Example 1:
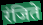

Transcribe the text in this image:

रंजिते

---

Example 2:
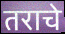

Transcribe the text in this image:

तराचे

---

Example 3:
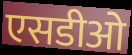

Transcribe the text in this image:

एसडीओ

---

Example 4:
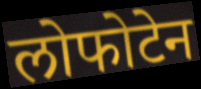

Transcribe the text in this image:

लोफोटेन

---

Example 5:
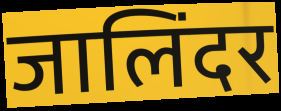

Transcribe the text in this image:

जालिंदर